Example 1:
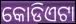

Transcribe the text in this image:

କୋଡିଏଟା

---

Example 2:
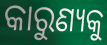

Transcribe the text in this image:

କାରୁଣ୍ୟକୁ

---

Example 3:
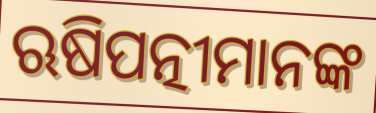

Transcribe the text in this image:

ଋଷିପତ୍ନୀମାନଙ୍କ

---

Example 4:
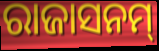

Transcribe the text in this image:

ରାଜାସନମ୍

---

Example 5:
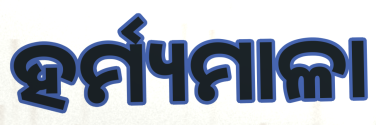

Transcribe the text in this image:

ହର୍ମ୍ୟମାଳା